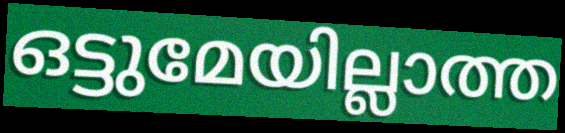
ഒട്ടുമേയില്ലാത്ത